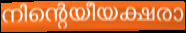
നിന്റെയീയക്ഷരാ